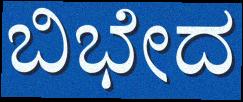
ಬಿಭೇದ